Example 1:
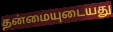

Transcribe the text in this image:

தன்மையுடையது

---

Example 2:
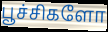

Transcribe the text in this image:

பூச்சிகளோ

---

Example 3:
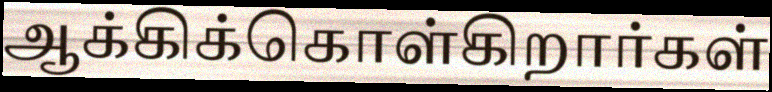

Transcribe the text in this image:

ஆக்கிக்கொள்கிறார்கள்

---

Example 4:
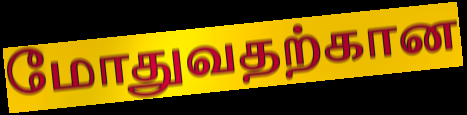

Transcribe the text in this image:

மோதுவதற்கான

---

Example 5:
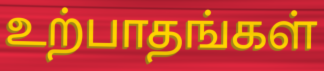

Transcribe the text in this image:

உற்பாதங்கள்